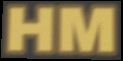
HM